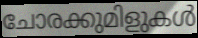
ചോരക്കുമിളുകൾ